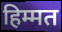
हिम्मत